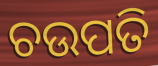
ଚଉପତି